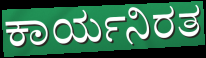
ಕಾರ್ಯನಿರತ